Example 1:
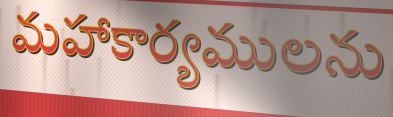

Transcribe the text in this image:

మహాకార్యములను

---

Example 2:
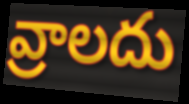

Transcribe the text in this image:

వ్రాలదు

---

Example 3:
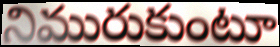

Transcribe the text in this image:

నిమురుకుంటూ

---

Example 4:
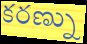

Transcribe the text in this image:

కరణ్ను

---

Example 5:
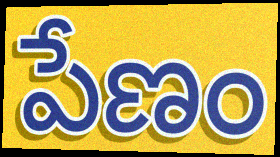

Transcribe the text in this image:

పేణం